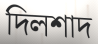
দিলশাদ